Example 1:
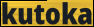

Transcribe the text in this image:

kutoka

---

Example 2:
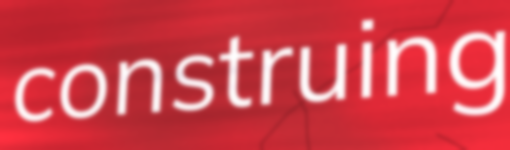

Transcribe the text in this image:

construing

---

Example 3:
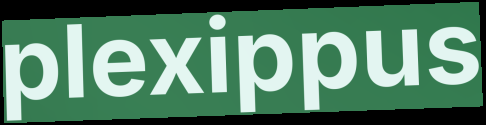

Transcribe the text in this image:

plexippus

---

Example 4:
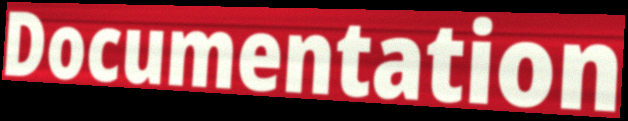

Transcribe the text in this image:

Documentation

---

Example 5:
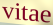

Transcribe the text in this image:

vitae